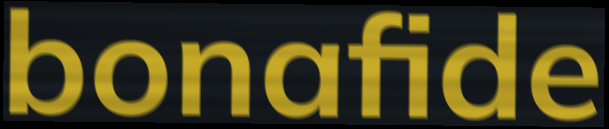
bonafide